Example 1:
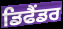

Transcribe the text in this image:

ਡਿਫੈਂਡਰ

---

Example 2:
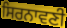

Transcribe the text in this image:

ਸਿਰਨਾਵਣੀ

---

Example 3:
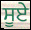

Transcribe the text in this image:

ਸੂਏ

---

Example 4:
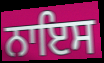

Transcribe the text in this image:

ਨਾਇਸ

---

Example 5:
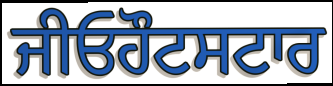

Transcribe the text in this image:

ਜੀਓਹੌਟਸਟਾਰ